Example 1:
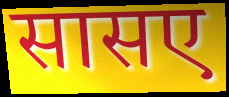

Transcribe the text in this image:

सासए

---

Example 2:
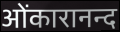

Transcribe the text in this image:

ओंकारानन्द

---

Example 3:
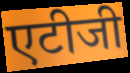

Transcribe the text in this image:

एटीजी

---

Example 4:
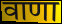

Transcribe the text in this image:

वाणा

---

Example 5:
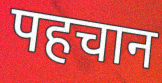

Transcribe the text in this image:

पहचान